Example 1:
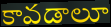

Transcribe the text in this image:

కావడాలూ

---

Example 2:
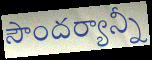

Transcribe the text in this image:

సౌందర్యాన్నీ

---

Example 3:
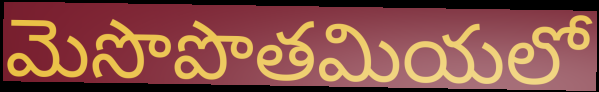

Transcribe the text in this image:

మెసొపొతమియలో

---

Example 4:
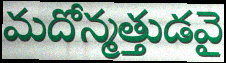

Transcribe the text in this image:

మదోన్మత్తుడవై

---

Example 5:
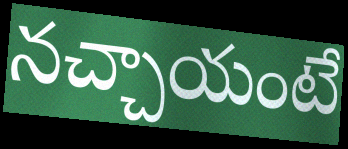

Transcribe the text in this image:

నచ్చాయంటే